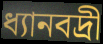
ধ্যানবদ্রী